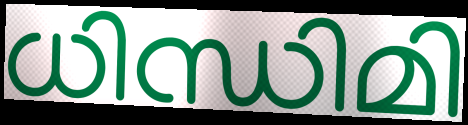
ധിന്ധിമി